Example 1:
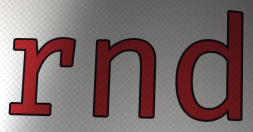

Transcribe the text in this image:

rnd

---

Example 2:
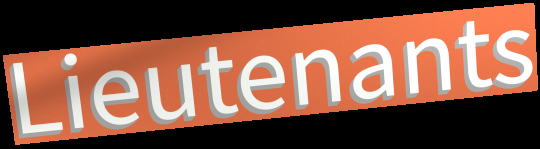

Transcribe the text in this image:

Lieutenants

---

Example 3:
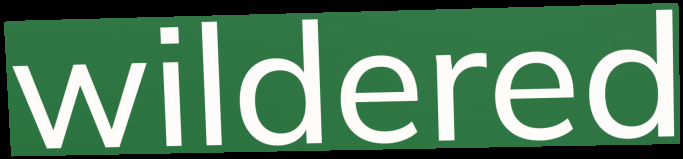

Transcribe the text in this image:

wildered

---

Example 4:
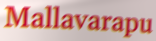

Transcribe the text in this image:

Mallavarapu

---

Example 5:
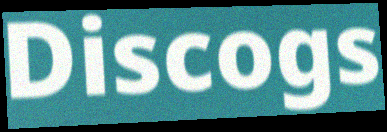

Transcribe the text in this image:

Discogs